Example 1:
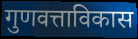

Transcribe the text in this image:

गुणवत्ताविकास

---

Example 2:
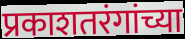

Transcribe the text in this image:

प्रकाशतरंगांच्या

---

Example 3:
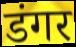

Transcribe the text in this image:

डंगर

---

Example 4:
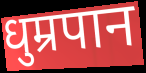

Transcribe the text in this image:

धुम्रपान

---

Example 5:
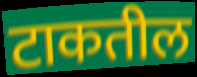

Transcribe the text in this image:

टाकतील